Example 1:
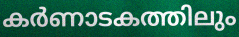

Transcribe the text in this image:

കർണാടകത്തിലും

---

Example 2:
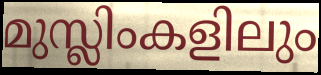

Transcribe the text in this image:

മുസ്ലിംകളിലും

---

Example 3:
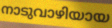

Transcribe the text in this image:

നാടുവാഴിയായ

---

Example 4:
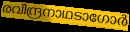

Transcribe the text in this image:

രവീന്ദ്രനാഥടാഗോർ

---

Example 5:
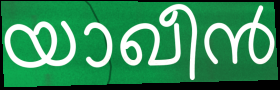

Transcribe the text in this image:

യാഖീൻ